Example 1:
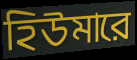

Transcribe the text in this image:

হিউমারে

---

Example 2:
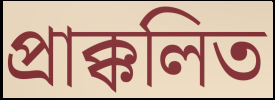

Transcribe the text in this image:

প্রাক্কলিত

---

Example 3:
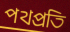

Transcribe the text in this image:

পথপ্রতি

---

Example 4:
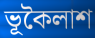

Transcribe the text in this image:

ভূকৈলাশ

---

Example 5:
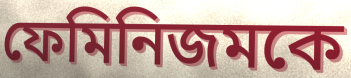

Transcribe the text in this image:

ফেমিনিজমকে